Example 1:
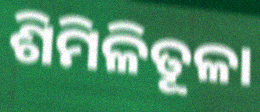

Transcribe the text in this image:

ଶିମିଳିତୂଳା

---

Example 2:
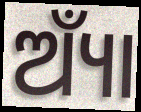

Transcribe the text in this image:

ଅ୍ୟାଁ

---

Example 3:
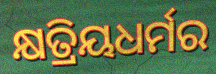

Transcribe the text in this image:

କ୍ଷତ୍ରିୟଧର୍ମର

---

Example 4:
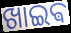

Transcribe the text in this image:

ଖାଇଵ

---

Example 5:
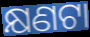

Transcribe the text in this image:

କ୍ଷଣଟା